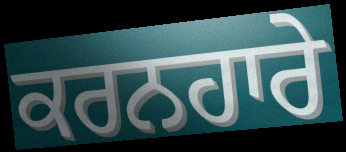
ਕਰਨਹਾਰੇ